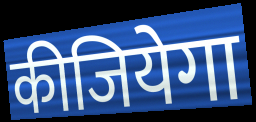
कीजियेगा